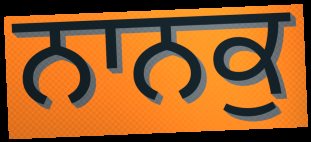
ਨਾਨਕੁ